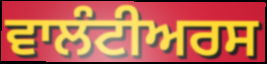
ਵਾਲੰਟੀਅਰਸ